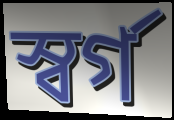
স্বৰ্গ